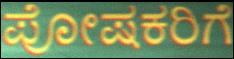
ಪೋಷಕರಿಗೆ